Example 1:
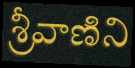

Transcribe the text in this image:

శ్రీవాణిని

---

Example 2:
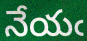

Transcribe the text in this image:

నేయఁ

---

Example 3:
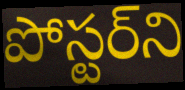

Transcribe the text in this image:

పోస్టర్‌ని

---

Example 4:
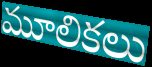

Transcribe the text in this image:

మూలికలు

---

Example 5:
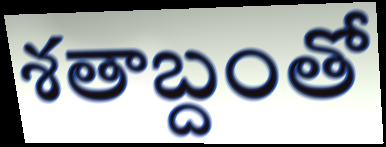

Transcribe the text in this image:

శతాబ్దంతో